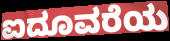
ಐದೂವರೆಯ